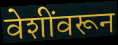
वेशींवरून